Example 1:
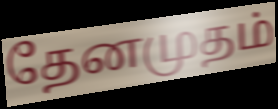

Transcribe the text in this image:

தேனமுதம்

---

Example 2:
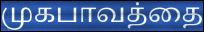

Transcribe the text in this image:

முகபாவத்தை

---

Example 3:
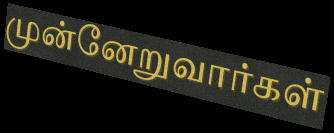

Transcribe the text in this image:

முன்னேறுவார்கள்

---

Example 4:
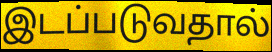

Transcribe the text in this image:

இடப்படுவதால்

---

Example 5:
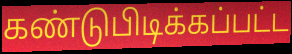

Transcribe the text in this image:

கண்டுபிடிக்கப்பட்ட